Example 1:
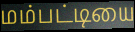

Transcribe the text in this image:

மம்பட்டியை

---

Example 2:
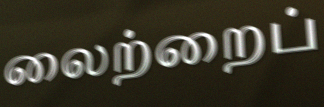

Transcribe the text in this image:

லைற்றைப்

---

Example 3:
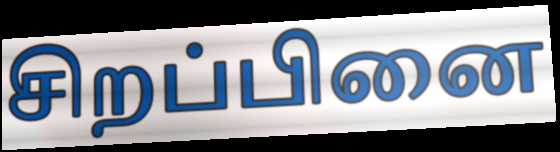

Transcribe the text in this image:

சிறப்பினை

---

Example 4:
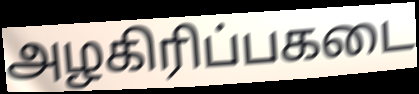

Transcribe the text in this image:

அழகிரிப்பகடை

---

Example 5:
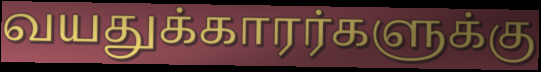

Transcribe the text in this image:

வயதுக்காரர்களுக்கு